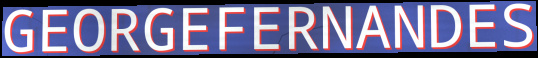
GEORGEFERNANDES